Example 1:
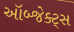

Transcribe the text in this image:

ઑબ્જેક્ટ્સ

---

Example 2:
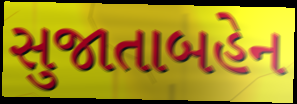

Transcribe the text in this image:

સુજાતાબહેન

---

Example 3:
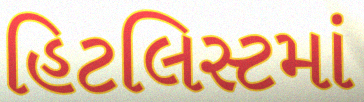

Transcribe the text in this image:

હિટલિસ્ટમાં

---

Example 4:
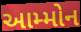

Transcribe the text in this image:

આમ્મોન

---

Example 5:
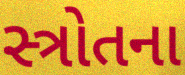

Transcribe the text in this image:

સ્ત્રોતના